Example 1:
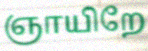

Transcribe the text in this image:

ஞாயிறே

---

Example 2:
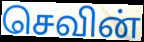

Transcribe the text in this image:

செவின்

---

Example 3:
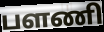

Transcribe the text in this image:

பளணி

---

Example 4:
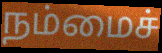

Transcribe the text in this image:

நம்மைச்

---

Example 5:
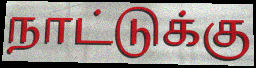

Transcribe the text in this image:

நாட்டுக்கு